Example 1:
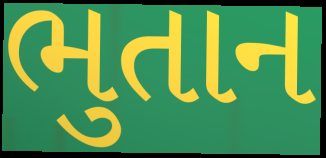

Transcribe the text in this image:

ભુતાન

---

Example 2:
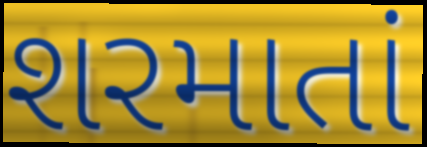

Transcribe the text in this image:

શરમાતાં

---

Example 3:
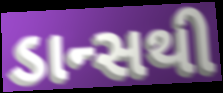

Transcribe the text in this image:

ડાન્સથી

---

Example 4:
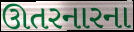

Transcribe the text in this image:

ઊતરનારના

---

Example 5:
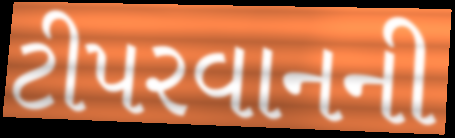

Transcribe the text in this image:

ટીપરવાનની